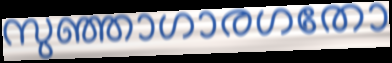
സുഞ്ഞാഗാരഗതോ